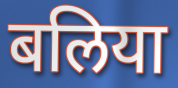
बलिया